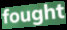
fought